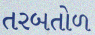
તરબતોળ